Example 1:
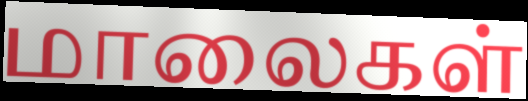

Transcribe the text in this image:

மாலைகள்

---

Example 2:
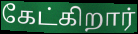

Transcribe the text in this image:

கேட்கிறார்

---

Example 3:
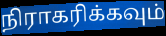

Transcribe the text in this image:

நிராகரிக்கவும்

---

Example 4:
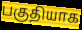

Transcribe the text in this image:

பகுதியாக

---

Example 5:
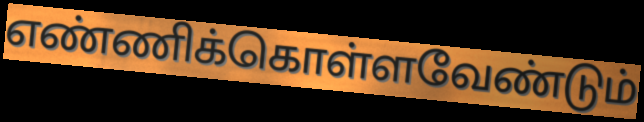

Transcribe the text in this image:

எண்ணிக்கொள்ளவேண்டும்